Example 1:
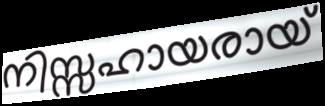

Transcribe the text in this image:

നിസ്സഹായരായ്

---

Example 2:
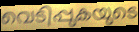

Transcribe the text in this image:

വെടിപ്പുകയുടെ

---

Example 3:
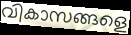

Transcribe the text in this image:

വികാസങ്ങളെ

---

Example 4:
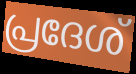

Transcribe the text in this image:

പ്രദേശ്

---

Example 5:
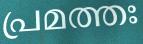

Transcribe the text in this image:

പ്രമത്തഃ